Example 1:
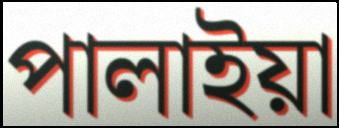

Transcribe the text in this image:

পালাইয়া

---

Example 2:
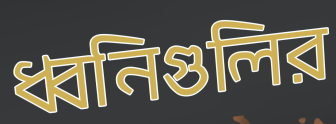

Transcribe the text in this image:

ধ্বনিগুলির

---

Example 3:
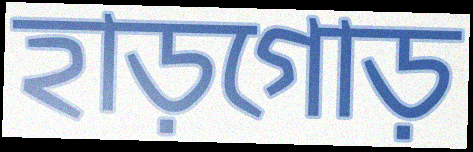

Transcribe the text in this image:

হাড়গোড়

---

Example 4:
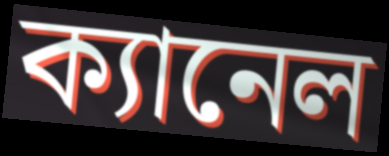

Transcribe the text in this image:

ক্যানেল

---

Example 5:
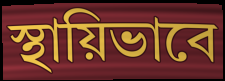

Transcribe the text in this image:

স্থায়িভাবে